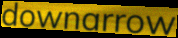
downarrow